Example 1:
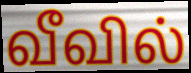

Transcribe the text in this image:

வீவில்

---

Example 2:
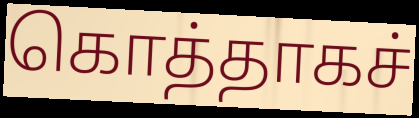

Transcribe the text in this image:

கொத்தாகச்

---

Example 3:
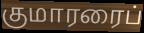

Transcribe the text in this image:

குமாரரைப்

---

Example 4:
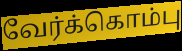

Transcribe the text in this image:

வேர்க்கொம்பு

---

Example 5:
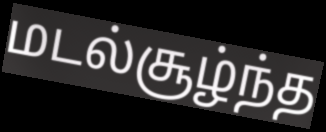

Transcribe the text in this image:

மடல்சூழ்ந்த